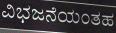
ವಿಭಜನೆಯಂತಹ